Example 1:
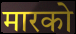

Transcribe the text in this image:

मारको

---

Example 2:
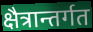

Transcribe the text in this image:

क्षैत्रान्तर्गत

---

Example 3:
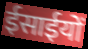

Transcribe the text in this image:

ईसाईयों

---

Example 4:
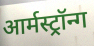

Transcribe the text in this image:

आर्मस्ट्रॉन्ग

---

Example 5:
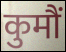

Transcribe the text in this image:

कुमौं